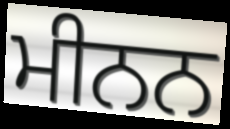
ਮੀਨਨ